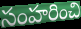
సంహరించి